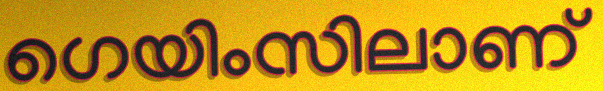
ഗെയിംസിലാണ്